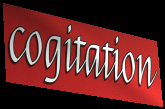
cogitation